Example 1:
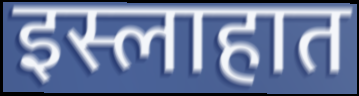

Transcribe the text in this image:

इस्लाहात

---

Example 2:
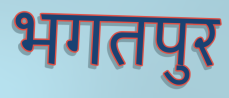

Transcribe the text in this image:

भगतपुर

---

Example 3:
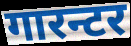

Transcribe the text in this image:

गारन्टर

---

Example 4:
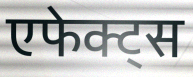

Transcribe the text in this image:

एफेक्ट्स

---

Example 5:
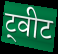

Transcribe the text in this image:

ट्‌वीट